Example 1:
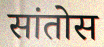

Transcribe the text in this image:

सांतोस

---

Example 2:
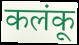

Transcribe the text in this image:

कलंकू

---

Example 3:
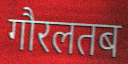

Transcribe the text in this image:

गौरलतब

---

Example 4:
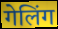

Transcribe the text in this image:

गेलिंग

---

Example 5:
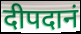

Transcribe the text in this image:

दीपदानं